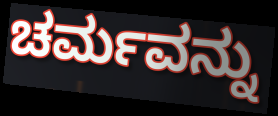
ಚರ್ಮವನ್ನು